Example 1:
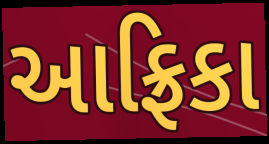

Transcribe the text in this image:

આફ્રિકા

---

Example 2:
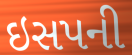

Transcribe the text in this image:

ઇસપની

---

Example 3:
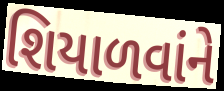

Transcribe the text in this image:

શિયાળવાંને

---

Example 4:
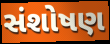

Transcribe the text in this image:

સંશોષણ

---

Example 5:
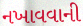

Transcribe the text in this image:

નખાવવાની